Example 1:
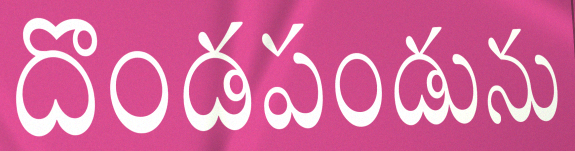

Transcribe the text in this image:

దొండపండును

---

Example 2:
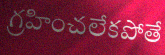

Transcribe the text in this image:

గ్రహించలేకపోతే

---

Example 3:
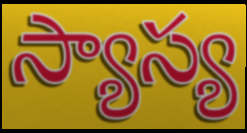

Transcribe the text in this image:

స్యాస్య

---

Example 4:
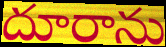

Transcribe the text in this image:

దూరాను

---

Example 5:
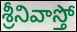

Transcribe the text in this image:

శ్రీనివాస్తో